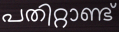
പതിറ്റാണ്ട്